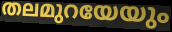
തലമുറയേയും